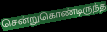
சென்றுகொண்டிருந்த